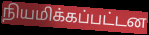
நியமிக்கப்பட்டன